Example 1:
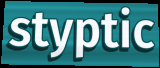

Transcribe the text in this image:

styptic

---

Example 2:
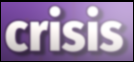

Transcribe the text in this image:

crisis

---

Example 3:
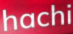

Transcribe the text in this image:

hachi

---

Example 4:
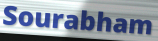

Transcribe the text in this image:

Sourabham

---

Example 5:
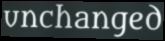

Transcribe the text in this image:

unchanged